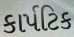
કાર્પટિક